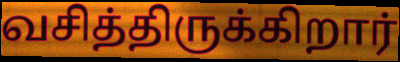
வசித்திருக்கிறார்